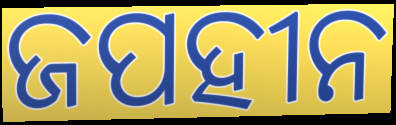
ଜପହୀନ